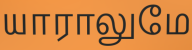
யாராலுமே